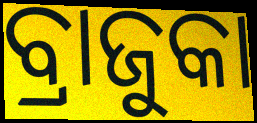
ବ୍ରାଜୁକା